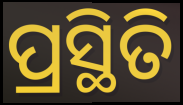
ପ୍ରସ୍ଥିତି